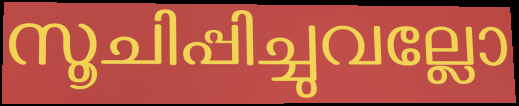
സൂചിപ്പിച്ചുവല്ലോ